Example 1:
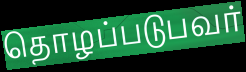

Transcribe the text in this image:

தொழப்படுபவர்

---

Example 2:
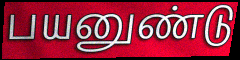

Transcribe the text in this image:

பயனுண்டு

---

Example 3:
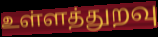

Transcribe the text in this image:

உள்ளத்துறவு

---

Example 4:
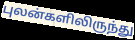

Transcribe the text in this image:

புலன்களிலிருந்து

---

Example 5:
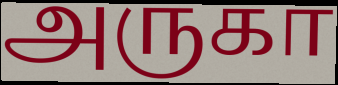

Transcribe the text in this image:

அருகா